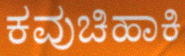
ಕವುಚಿಹಾಕಿ